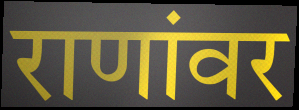
राणांवर